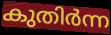
കുതിർന്ന